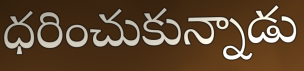
ధరించుకున్నాడు